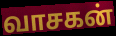
வாசகன்